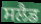
ਸਲੈਡ